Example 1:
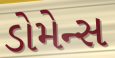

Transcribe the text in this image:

ડોમેન્સ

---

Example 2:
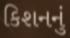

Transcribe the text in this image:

કિશનનું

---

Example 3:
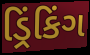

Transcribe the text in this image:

ડ્રિંકિંગ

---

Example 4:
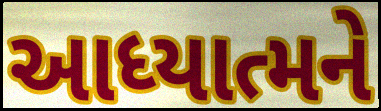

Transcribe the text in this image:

આધ્યાત્મને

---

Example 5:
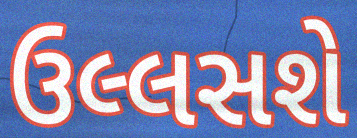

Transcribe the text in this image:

ઉલ્લસશે